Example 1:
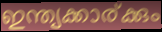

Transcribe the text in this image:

ഇന്ത്യക്കാര്ക്കും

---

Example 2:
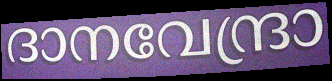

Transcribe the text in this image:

ദാനവേന്ദ്രാ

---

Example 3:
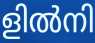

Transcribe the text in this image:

ളിൽനി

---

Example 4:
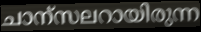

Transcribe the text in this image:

ചാന്സലറായിരുന്ന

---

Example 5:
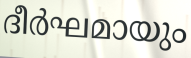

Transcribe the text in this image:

ദീർഘമായും